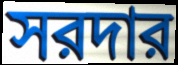
সরদার